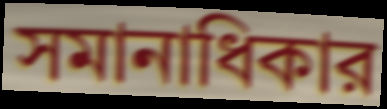
সমানাধিকার